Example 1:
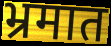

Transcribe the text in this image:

भ्रमात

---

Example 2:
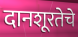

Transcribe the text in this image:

दानशूरतेचे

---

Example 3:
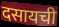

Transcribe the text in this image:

दसायची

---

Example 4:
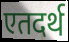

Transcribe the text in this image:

एतदर्थ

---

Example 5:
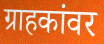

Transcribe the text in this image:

ग्राहकांवर